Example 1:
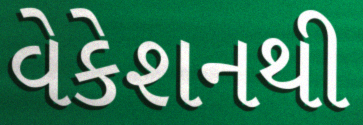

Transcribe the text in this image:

વેકેશનથી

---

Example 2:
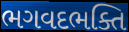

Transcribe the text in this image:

ભગવદભક્તિ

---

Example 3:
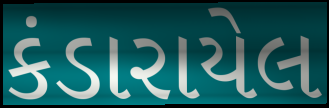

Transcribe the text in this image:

કંડારાયેલ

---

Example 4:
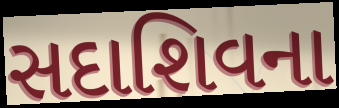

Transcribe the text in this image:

સદાશિવના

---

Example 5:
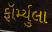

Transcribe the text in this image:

ફૉર્મ્યુલા